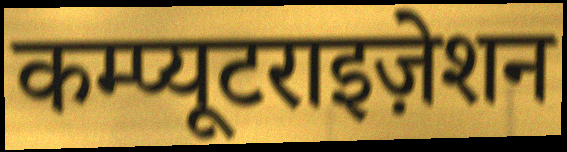
कम्प्यूटराइज़ेशन